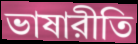
ভাষারীতি